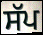
ਸੱਪ